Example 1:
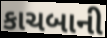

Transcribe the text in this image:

કાચબાની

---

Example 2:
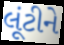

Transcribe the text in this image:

લૂંટીને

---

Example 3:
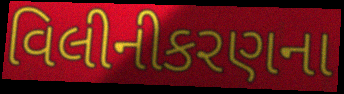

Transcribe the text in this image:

વિલીનીકરણના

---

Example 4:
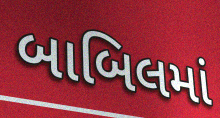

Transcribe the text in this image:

બાબિલમાં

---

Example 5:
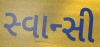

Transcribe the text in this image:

સ્વાન્સી